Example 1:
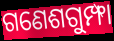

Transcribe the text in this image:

ଗଣେଶଗୁମ୍ଫା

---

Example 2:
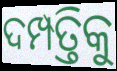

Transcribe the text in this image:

ଦମ୍ପତ୍ତିକୁ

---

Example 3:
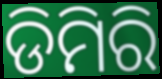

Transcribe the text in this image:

ଡିମିରି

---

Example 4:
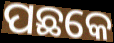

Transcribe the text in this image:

ପଛକେ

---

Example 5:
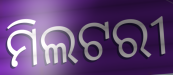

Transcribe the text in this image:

ମିଲଟରୀ